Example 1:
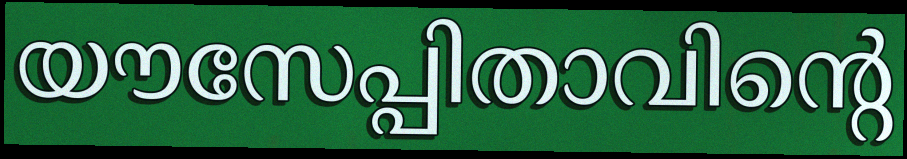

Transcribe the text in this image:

യൗസേപ്പിതാവിന്റെ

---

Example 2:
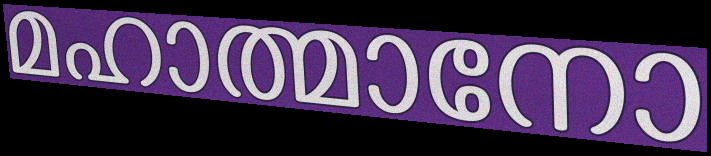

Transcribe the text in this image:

മഹാത്മാനോ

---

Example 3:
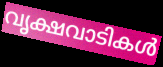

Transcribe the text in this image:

വൃക്ഷവാടികൾ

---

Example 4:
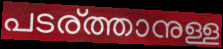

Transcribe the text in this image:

പടര്ത്താനുള്ള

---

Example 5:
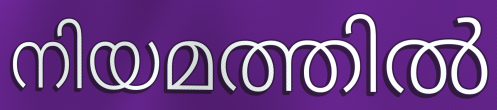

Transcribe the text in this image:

നിയമത്തിൽ